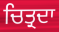
ਚਿਤ੍ਰਦਾ